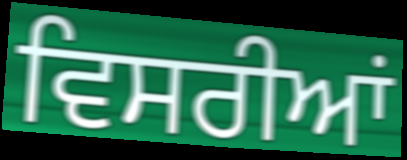
ਵਿਸਰੀਆਂ